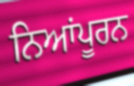
ਨਿਆਂਪੂਰਨ